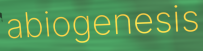
abiogenesis